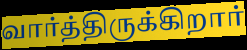
வார்த்திருக்கிறார்